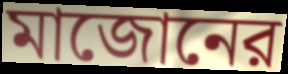
মাজোনের